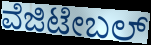
ವೆಜಿಟೇಬಲ್